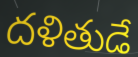
దళితుడే